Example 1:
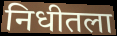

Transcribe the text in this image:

निधीतला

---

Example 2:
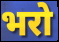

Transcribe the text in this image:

भरो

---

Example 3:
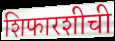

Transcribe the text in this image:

शिफारशीची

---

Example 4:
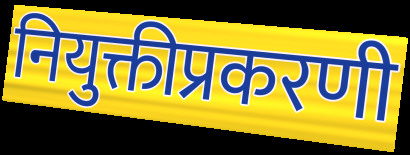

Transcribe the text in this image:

नियुक्तीप्रकरणी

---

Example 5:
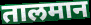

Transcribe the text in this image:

तालमान